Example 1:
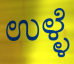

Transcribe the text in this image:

ಉಳ್ಳೆ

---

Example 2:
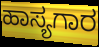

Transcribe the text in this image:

ಹಾಸ್ಯಗಾರ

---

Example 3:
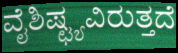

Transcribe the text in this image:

ವೈಶಿಷ್ಟ್ಯವಿರುತ್ತದೆ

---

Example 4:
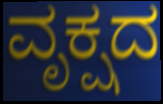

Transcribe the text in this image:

ವೃಕ್ಷದ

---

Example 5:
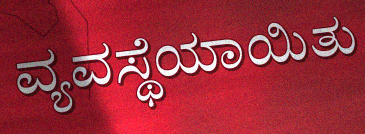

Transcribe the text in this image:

ವ್ಯವಸ್ಥೆಯಾಯಿತು